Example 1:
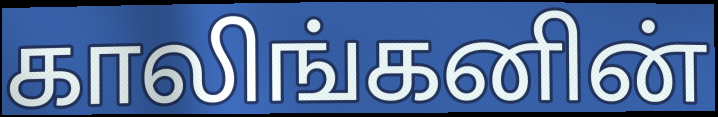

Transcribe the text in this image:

காலிங்கனின்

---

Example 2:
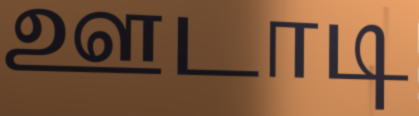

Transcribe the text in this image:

ஊடாடி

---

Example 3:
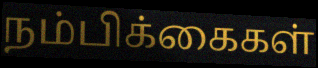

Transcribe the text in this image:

நம்பிக்கைகள்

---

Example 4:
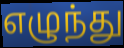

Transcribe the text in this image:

எழுந்து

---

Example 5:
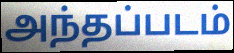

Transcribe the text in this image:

அந்தப்படம்